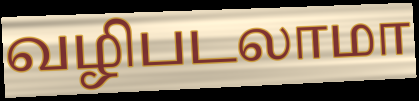
வழிபடலாமா